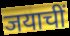
जयाचीं